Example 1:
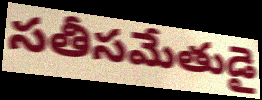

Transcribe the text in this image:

సతీసమేతుడై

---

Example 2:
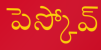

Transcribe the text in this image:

పెస్కోవ్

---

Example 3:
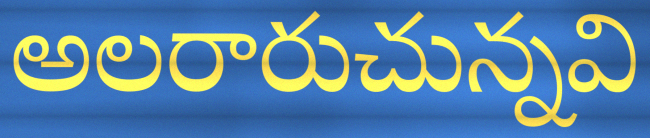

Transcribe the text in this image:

అలరారుచున్నవి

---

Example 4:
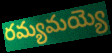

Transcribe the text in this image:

రమ్యమయ్యె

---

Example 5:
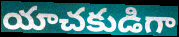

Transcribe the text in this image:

యాచకుడిగా